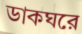
ডাকঘরে